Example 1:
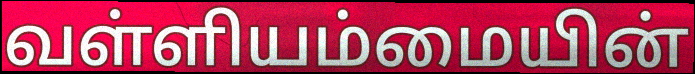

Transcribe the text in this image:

வள்ளியம்மையின்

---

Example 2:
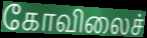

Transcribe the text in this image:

கோவிலைச்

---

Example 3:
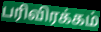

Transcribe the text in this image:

பரிவிரக்கம்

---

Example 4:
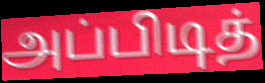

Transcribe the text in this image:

அப்பிடித்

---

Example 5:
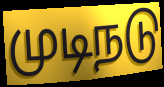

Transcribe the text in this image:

முடிநடு